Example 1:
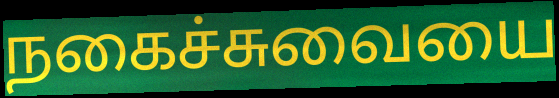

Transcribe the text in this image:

நகைச்சுவையை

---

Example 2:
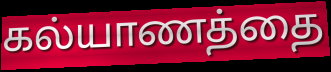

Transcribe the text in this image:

கல்யாணத்தை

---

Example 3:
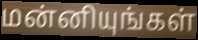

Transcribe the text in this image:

மன்னியுங்கள்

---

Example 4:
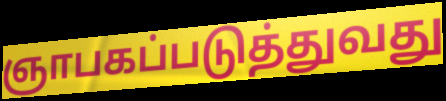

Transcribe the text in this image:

ஞாபகப்படுத்துவது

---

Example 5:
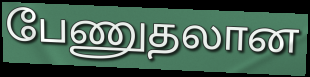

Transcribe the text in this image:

பேணுதலான